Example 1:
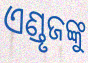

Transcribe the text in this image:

ଏଣ୍ଡୃଜଙ୍କୁ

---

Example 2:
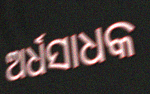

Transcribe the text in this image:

ଅର୍ଧସାଧକ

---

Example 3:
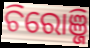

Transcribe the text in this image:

ଚିରୋଞ୍ଜି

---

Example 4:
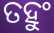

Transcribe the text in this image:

ତହୁଂ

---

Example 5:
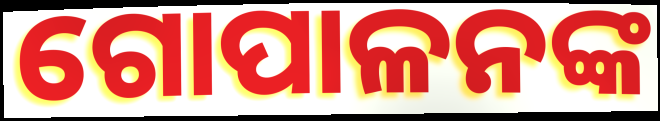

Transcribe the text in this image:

ଗୋପାଳନଙ୍କ